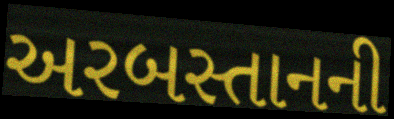
અરબસ્તાનની